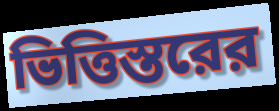
ভিত্তিস্তরের